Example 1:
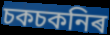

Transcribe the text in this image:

চকচকনিৰ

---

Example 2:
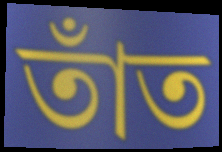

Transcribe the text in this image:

তাঁত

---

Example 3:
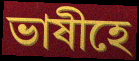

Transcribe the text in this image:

ভাষীহে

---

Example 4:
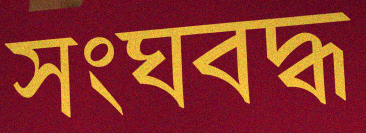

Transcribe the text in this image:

সংঘবদ্ধ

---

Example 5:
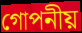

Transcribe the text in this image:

গোপনীয়